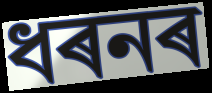
ধৰনৰ